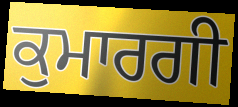
ਕੁਮਾਰਗੀ